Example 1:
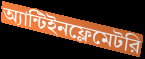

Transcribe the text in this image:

অ্যান্টিইনফ্লেমেটরি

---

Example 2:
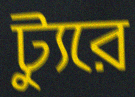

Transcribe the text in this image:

ট্যুরে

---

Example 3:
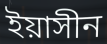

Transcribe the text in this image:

ইয়াসীন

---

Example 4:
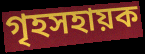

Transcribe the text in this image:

গৃহসহায়ক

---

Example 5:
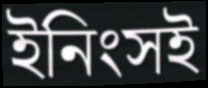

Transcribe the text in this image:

ইনিংসই